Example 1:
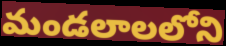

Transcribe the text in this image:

మండలాలలోని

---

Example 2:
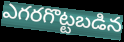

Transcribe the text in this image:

ఎగరగొట్టబడిన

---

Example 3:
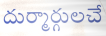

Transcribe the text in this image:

దుర్మార్గులచే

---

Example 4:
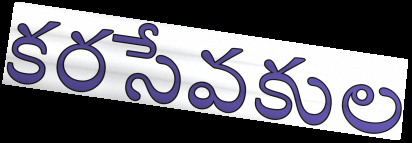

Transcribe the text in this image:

కరసేవకుల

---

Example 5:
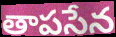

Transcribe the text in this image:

తాపసేన